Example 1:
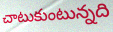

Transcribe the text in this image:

చాటుకుంటున్నది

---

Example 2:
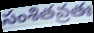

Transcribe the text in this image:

సంశితవ్రతః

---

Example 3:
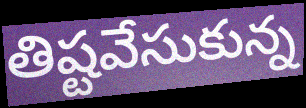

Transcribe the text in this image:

తిష్టవేసుకున్న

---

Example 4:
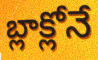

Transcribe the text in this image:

బ్లాక్లోనే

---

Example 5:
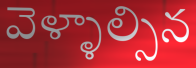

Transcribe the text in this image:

వెళ్ళాల్సిన